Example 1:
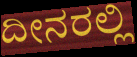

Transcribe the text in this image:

ದೀನರಲ್ಲಿ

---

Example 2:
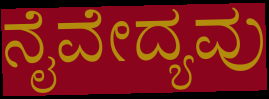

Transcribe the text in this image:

ನೈವೇದ್ಯವು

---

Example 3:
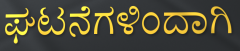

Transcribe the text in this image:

ಘಟನೆಗಳಿಂದಾಗಿ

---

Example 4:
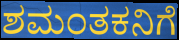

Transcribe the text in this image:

ಶಮಂತಕನಿಗೆ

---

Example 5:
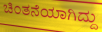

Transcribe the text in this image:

ಚಿಂತನೆಯಾಗಿದ್ದು